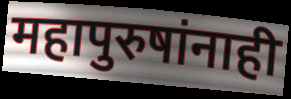
महापुरुषांनाही